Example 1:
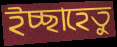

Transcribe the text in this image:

ইচ্ছাহেতু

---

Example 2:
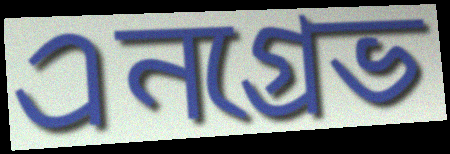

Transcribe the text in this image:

এনগ্রেভ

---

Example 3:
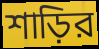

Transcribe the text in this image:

শাড়ির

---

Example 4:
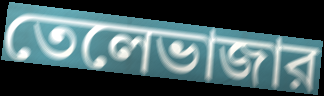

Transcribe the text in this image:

তেলেভাজার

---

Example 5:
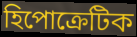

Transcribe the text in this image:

হিপোক্রেটিক